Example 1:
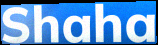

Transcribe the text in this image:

Shaha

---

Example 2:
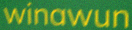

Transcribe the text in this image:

winawun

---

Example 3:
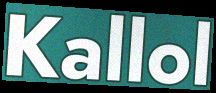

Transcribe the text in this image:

Kallol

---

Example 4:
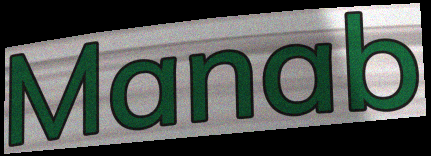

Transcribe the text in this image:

Manab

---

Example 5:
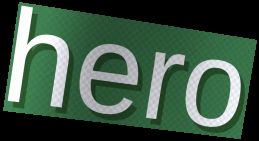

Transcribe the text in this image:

hero